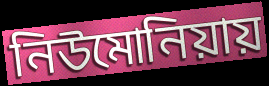
নিউমোনিয়ায়